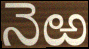
నెఱ